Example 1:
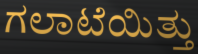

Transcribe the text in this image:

ಗಲಾಟೆಯಿತ್ತು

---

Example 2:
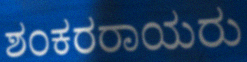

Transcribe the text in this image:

ಶಂಕರರಾಯರು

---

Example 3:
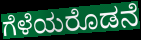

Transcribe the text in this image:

ಗೆಳೆಯರೊಡನೆ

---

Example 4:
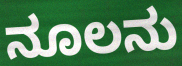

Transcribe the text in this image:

ನೂಲನು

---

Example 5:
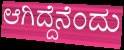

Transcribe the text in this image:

ಆಗಿದ್ದೆನೆಂದು